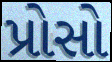
પ્રોસો